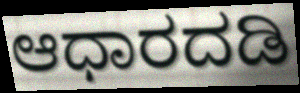
ಆಧಾರದಡಿ